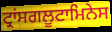
ਟ੍ਰਾਂਸਗਲੂਟਾਮਿਨੇਸ